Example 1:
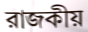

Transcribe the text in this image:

রাজকীয়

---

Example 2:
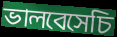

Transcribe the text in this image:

ভালবেসেচি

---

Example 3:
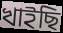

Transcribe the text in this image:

খাইছি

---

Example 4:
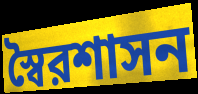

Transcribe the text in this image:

স্বৈরশাসন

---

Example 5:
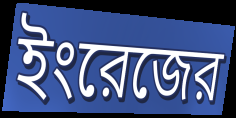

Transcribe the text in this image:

ইংরেজের